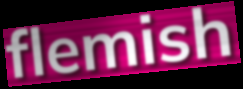
flemish